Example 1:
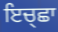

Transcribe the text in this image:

ਇਚ੍ਛਾ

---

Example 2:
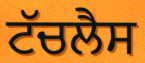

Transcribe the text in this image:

ਟੱਚਲੈਸ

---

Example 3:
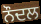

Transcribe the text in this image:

ਨੌਦਲ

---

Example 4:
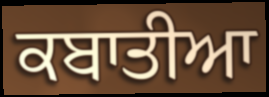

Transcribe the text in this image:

ਕਬਾਤੀਆ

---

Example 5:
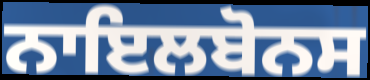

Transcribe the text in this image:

ਨਾਇਲਬੋਨਸ